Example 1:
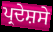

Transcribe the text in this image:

ਪ੍ਰਦੇਸ਼ਸੇ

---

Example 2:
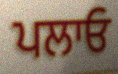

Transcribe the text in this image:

ਪਲਾਓ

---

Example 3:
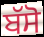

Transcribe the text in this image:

ਬੱਸੋ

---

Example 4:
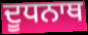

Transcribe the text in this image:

ਦੂਧਨਾਥ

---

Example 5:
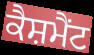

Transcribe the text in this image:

ਕੈਸ਼ਮੈਂਟ